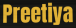
Preetiya